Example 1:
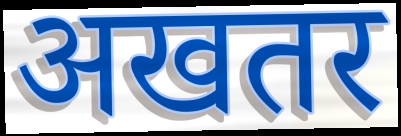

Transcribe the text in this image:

अखतर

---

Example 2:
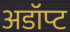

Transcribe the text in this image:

अडॉप्‍ट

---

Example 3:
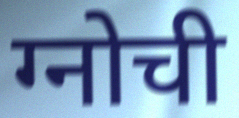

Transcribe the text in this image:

ग्नोची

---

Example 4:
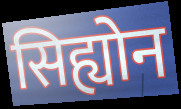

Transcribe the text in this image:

सिह्योन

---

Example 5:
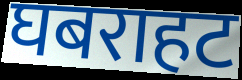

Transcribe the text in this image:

घबराहट